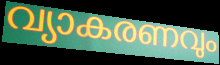
വ്യാകരണവും